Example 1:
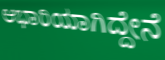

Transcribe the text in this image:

ಆಭಾರಿಯಾಗಿದ್ದೇನೆ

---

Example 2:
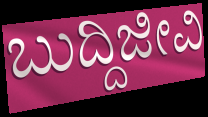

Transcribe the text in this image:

ಬುದ್ದಿಜೀವಿ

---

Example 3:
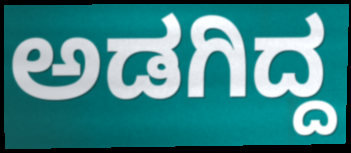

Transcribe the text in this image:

ಅಡಗಿದ್ದ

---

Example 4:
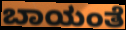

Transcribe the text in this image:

ಬಾಯಂತೆ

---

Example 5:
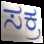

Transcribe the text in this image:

ಸಕ್ರ